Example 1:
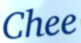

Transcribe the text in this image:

Chee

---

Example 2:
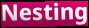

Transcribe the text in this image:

Nesting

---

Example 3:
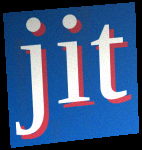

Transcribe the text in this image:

jit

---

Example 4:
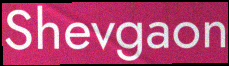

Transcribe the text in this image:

Shevgaon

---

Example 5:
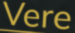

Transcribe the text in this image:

Vere